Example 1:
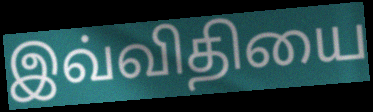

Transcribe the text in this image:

இவ்விதியை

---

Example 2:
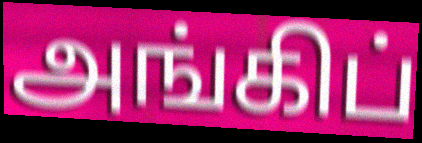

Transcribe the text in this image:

அங்கிப்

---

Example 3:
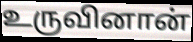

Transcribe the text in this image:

உருவினான்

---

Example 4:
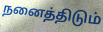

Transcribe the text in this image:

நனைத்திடும்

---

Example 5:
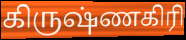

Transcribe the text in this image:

கிருஷ்ணகிரி